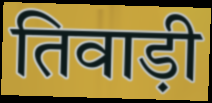
तिवाड़ी